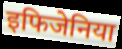
इफिजेनिया